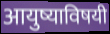
आयुष्याविषयी